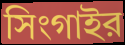
সিংগাইর